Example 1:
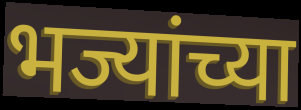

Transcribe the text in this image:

भज्यांच्या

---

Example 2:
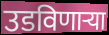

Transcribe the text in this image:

उडविणार्‍या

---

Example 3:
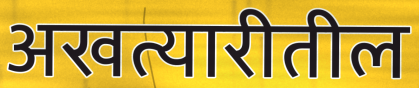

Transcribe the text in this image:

अखत्यारीतील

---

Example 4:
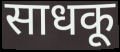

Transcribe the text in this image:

साधकू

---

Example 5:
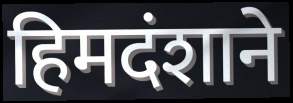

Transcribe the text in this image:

हिमदंशाने